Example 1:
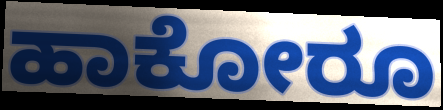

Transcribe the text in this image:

ಹಾಕೋರೂ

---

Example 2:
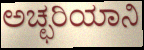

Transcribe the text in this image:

ಅಚ್ಛರಿಯಾನಿ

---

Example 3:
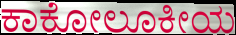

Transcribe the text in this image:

ಕಾಕೋಲೂಕೀಯ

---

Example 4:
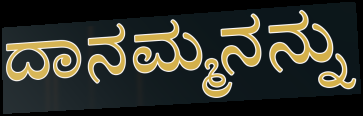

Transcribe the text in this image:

ದಾನಮ್ಮನನ್ನು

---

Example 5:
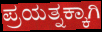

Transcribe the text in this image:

ಪ್ರಯತ್ನಕ್ಕಾಗಿ